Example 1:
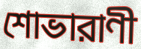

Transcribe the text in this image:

শোভারাণী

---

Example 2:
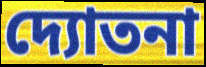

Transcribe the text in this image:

দ্যোতনা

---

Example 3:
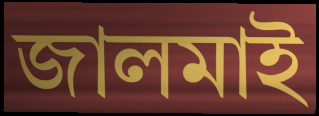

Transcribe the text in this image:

জালমাই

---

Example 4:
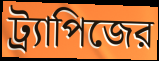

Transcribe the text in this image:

ট্র্যাপিজের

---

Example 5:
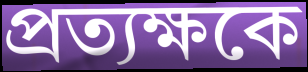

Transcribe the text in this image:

প্রত্যক্ষকে